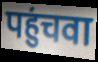
पहुंचवा